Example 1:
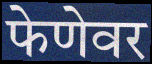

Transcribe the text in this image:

फेणेवर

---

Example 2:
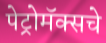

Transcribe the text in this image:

पेट्रोमॅक्सचे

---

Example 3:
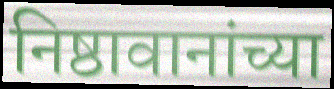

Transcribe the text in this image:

निष्ठावानांच्या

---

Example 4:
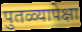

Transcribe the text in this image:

पुतळ्यापेक्षा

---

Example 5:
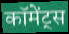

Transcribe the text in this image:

कॉमेंट्स